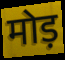
मोड़